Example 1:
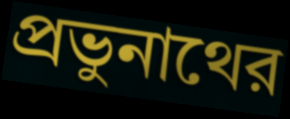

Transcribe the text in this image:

প্রভুনাথের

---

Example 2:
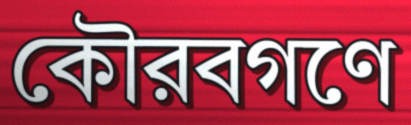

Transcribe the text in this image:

কৌরবগণে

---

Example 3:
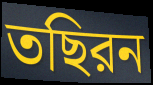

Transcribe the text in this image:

তছিরন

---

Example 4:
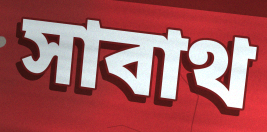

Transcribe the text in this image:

সাবাথ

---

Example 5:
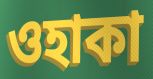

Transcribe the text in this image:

ওহাকা